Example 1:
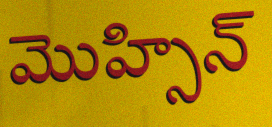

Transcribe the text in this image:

మొహ్సిన్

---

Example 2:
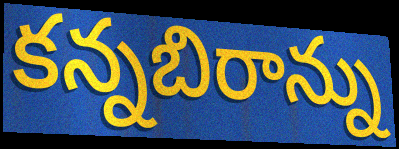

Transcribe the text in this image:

కన్నబిరాన్ను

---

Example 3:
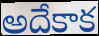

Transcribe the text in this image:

అదేకాక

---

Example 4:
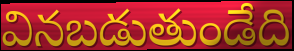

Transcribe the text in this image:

వినబడుతుండేది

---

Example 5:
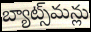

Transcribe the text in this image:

బ్యాట్స్‌మన్లు